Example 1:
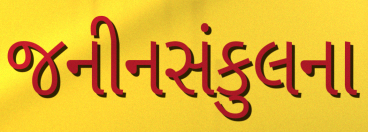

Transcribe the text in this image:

જનીનસંકુલના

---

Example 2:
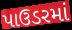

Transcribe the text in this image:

પાઉડરમાં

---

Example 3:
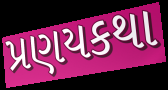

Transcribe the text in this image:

પ્રણયકથા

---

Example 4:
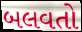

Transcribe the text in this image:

બલવતો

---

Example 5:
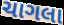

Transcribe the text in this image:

ચાગલા